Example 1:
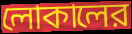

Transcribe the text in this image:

লোকালের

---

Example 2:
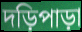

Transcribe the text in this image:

দড়িপাড়া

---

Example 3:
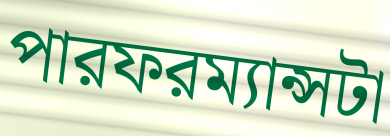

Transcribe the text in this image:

পারফরম্যান্সটা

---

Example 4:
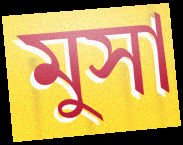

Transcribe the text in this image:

মুসা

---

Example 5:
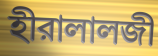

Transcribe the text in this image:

হীরালালজী